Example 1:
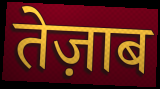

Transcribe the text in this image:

तेज़ाब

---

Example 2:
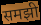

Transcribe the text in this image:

समझी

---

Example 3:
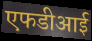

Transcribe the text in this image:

एफडीआई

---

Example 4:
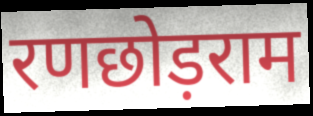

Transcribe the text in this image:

रणछोड़राम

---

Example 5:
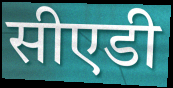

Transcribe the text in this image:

सीएडी